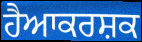
ਹੈਆਕਰਸ਼ਕ